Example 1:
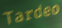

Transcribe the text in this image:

Tardeo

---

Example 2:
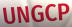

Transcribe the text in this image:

UNGCP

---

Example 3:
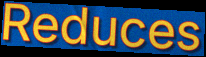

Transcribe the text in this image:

Reduces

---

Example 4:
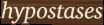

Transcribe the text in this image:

hypostases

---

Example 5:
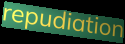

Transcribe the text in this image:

repudiation